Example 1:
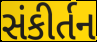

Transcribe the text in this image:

સંકીર્તન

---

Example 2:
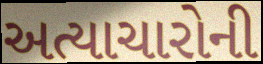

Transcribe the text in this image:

અત્યાચારોની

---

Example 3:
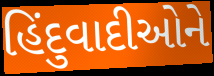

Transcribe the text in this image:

હિંદુવાદીઓને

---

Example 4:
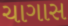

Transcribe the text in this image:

ચાગાસ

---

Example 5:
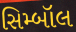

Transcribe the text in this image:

સિમ્બૉલ